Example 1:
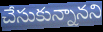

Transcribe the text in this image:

చేసుకున్నానని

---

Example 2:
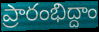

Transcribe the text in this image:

ప్రారంభిద్దాం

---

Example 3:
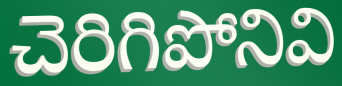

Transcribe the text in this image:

చెరిగిపోనివి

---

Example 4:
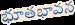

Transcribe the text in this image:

భూతభావన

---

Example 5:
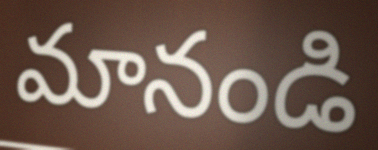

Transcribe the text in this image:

మానండి